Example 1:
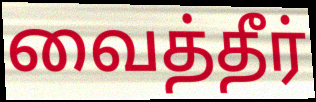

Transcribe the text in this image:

வைத்தீர்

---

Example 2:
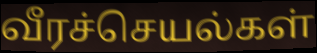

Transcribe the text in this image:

வீரச்செயல்கள்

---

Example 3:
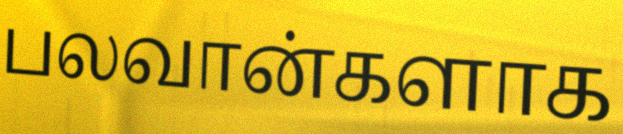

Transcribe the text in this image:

பலவான்களாக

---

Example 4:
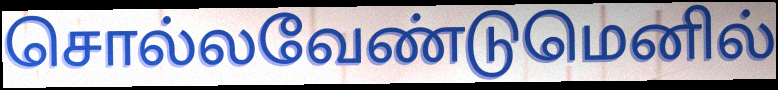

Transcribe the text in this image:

சொல்லவேண்டுமெனில்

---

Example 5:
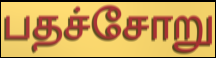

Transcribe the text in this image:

பதச்சோறு